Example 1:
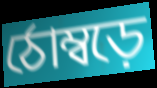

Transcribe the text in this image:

ঠোম্বড়ে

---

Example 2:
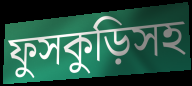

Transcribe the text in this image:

ফুসকুড়িসহ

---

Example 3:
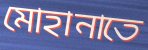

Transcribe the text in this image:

মোহানাতে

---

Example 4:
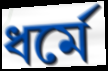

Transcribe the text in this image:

ধর্মে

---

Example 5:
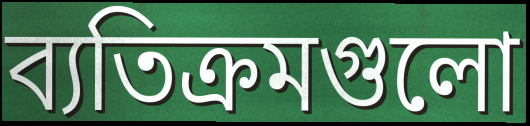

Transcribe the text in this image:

ব্যতিক্রমগুলো